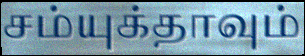
சம்யுக்தாவும்